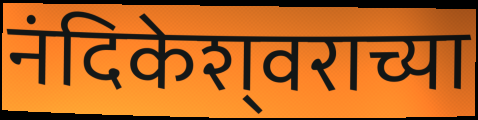
नंदिकेश्वराच्या